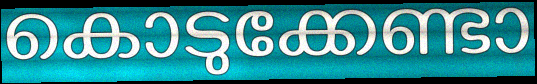
കൊടുക്കേണ്ടാ